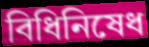
বিধিনিষেধ